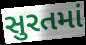
સુરતમાં